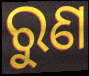
ରୁଣ